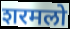
शरमलो